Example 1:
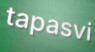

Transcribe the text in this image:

tapasvi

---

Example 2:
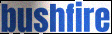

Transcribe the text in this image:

bushfire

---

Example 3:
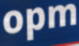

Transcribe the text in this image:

opm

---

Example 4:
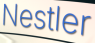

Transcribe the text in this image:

Nestler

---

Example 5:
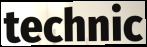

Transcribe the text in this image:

technic